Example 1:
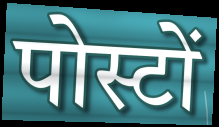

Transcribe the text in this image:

पोस्टों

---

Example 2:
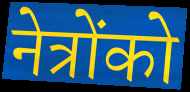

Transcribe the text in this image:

नेत्रोंको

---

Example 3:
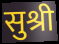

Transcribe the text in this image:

सुश्री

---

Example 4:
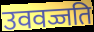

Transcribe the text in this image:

उववज्जति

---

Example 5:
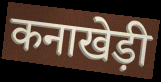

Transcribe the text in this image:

कनाखेड़ी